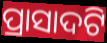
ପ୍ରାସାଦଟି